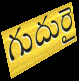
గుదురై